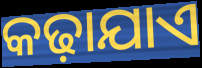
କଢ଼ାଯାଏ